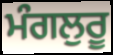
ਮੰਗਲੁਰੂ